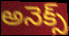
అనెక్స్